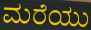
ಮರೆಯು